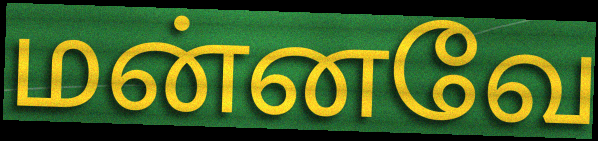
மன்னவே